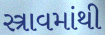
સ્ત્રાવમાંથી